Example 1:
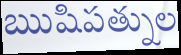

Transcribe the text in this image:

ఋషిపత్నుల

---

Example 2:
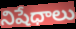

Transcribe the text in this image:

నిషేధాలు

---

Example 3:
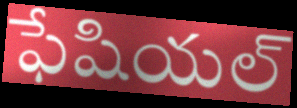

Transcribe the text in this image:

ఫేషియల్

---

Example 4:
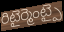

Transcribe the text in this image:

రిటైర్మెంట్పై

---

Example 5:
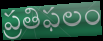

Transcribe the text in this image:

ప్రతిఫలం